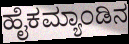
ಹೈಕಮ್ಯಾಂಡಿನ